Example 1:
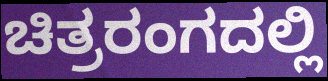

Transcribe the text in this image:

ಚಿತ್ರರಂಗದಲ್ಲಿ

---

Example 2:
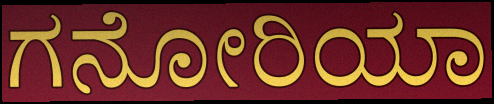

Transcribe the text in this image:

ಗನೋರಿಯಾ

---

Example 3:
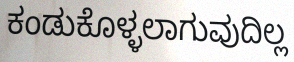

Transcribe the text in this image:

ಕಂಡುಕೊಳ್ಳಲಾಗುವುದಿಲ್ಲ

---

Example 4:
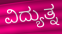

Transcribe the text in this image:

ವಿದ್ಯುತ್ನ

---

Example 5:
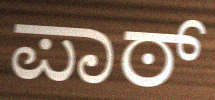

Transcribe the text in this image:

ಪಾಠ್